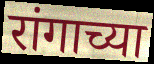
रांगाच्या